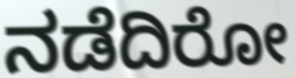
ನಡೆದಿರೋ